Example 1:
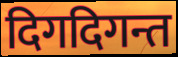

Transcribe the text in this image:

दिगदिगन्त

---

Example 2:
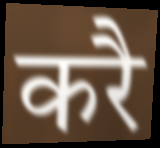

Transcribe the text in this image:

करै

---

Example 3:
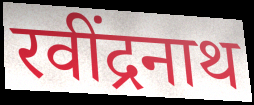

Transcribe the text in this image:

रवींद्रनाथ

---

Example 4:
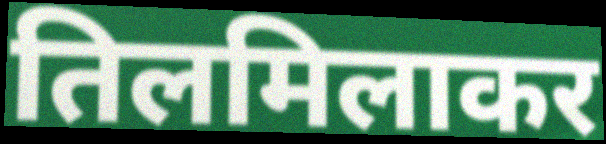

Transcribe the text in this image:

तिलमिलाकर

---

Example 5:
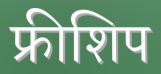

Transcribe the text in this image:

फ्रीशिप